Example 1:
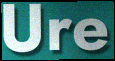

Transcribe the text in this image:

Ure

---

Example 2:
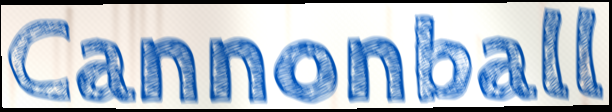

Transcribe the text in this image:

Cannonball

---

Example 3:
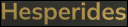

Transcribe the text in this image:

Hesperides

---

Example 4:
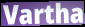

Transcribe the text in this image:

Vartha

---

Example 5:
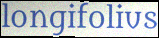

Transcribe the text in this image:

longifolius